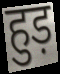
हुड़